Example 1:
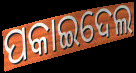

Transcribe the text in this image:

ପକାଇଦେଲ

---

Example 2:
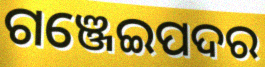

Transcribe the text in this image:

ଗଞ୍ଜେଇପଦର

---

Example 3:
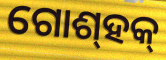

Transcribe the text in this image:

ଗୋଶ୍‍ହକ୍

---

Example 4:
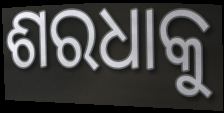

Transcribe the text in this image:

ଶରଧାକୁ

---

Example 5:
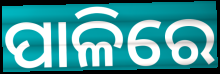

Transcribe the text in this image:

ପାଳିରେ